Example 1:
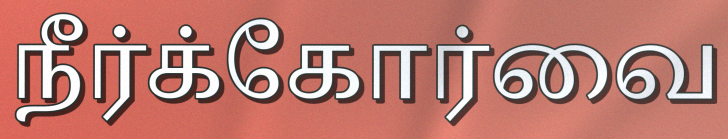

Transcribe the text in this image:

நீர்க்கோர்வை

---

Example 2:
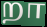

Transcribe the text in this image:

றா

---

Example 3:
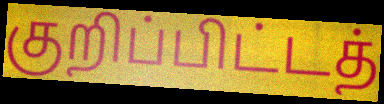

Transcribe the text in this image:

குறிப்பிட்டத்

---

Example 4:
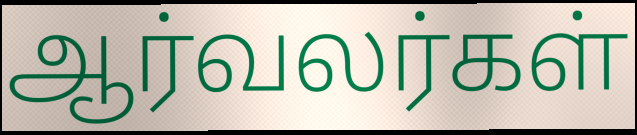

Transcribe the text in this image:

ஆர்வலர்கள்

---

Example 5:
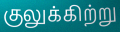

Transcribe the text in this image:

குலுக்கிற்று